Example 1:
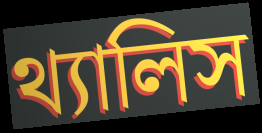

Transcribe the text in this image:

থ্যালিস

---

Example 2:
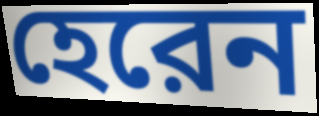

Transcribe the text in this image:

হেরেন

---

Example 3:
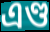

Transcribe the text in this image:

এণ্ড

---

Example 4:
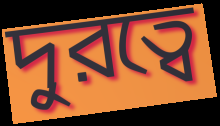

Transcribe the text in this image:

দুরত্বে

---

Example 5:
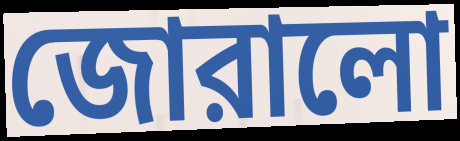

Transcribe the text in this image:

জোরালো